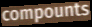
compounts